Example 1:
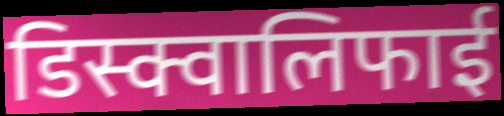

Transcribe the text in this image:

डिस्क्वालिफाई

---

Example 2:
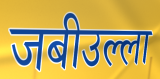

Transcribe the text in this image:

जबीउल्ला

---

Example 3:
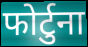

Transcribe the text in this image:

फोर्टुना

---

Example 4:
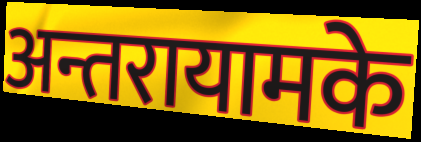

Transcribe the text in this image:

अन्तरायामके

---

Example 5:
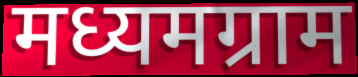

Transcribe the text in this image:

मध्यमग्राम